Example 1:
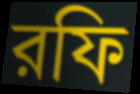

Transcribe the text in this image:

রফি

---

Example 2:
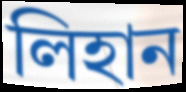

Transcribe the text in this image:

লিহান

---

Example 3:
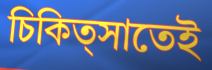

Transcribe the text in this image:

চিকিত্সাতেই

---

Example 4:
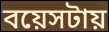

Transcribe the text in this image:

বয়েসটায়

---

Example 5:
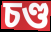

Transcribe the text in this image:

চণ্ড